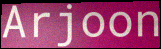
Arjoon